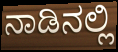
ನಾಡಿನಲ್ಲಿ